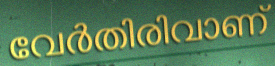
വേർതിരിവാണ്